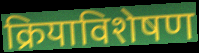
क्रियाविशेषण